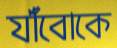
র্যাঁবোকে